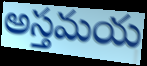
అస్తమయ